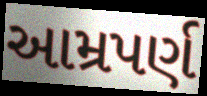
આમ્રપર્ણ